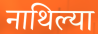
नाथिल्या